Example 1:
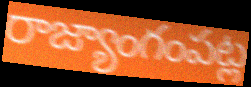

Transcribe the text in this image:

రాజ్యాంగంపట్ల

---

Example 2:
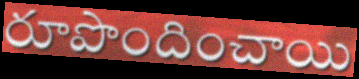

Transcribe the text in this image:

రూపొందించాయి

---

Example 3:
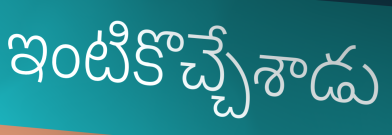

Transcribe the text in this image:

ఇంటికొచ్చేశాడు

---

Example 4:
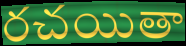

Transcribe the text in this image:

రచయితా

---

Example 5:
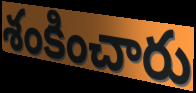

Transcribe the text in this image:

శంకించారు